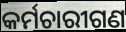
କର୍ମଚାରୀଗଣ